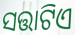
ସତ୍ତାଟିଏ